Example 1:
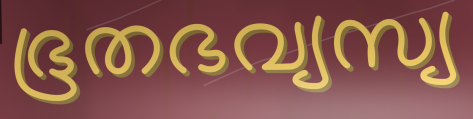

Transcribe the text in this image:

ഭൂതഭവ്യസ്യ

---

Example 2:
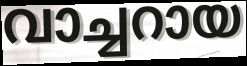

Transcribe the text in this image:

വാച്ചറായ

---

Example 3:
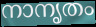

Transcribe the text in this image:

നാനൃതം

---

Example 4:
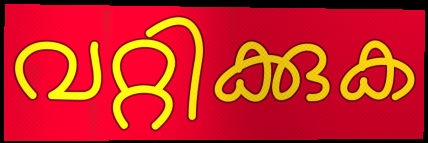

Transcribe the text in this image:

വറ്റിക്കുക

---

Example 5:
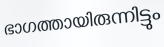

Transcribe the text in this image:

ഭാഗത്തായിരുന്നിട്ടും